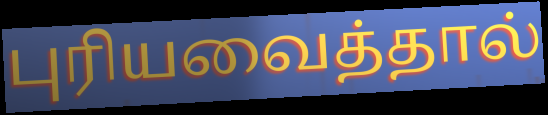
புரியவைத்தால்